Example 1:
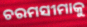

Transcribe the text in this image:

ଚରମସୀମାକୁ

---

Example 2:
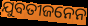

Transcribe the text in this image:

ଯୁବତୀଜନେନ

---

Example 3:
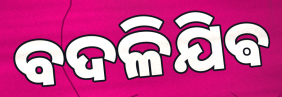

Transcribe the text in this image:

ବଦଳିଯିଵ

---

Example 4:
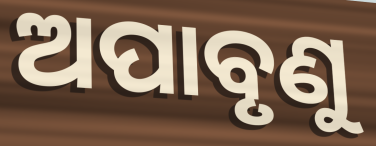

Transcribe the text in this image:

ଅପାବୃଣୁ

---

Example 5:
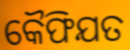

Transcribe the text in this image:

କୈଫିଯତ